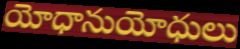
యోధానుయోధులు